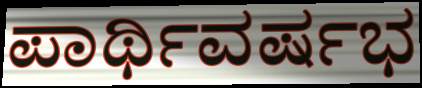
ಪಾರ್ಥಿವರ್ಷಭ